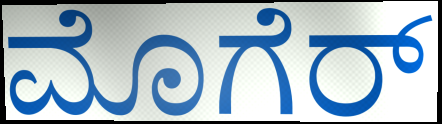
ಮೊಗೆರ್